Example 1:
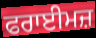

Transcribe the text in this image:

ਫਰਾਈਮਜ਼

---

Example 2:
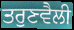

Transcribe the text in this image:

ਤਰੁਣਵੈਲੀ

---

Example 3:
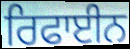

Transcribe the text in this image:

ਰਿਫਾਈਨ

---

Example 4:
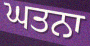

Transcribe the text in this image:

ਘਤਨਾ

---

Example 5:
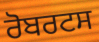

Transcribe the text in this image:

ਰੋਬਰਟਸ